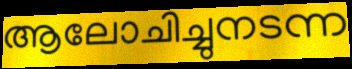
ആലോചിച്ചുനടന്ന